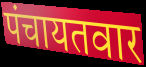
पंचायतवार